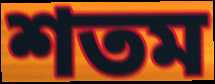
শতম